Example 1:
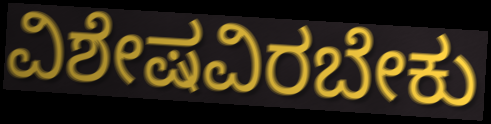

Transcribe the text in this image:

ವಿಶೇಷವಿರಬೇಕು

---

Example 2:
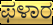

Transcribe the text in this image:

ಫಳಾರ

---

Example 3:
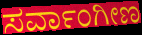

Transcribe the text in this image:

ಸರ್ವಾಂಗೀಣ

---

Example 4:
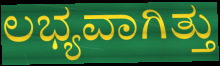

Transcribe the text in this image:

ಲಭ್ಯವಾಗಿತ್ತು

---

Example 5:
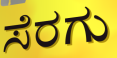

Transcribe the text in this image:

ಸೆರಗು